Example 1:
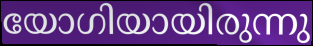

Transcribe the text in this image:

യോഗിയായിരുന്നു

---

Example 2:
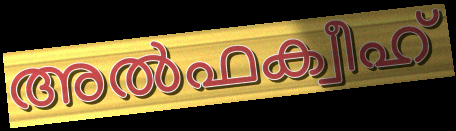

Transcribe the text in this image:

അൽഫക്വീഹ്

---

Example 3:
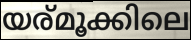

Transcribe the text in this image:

യര്മൂക്കിലെ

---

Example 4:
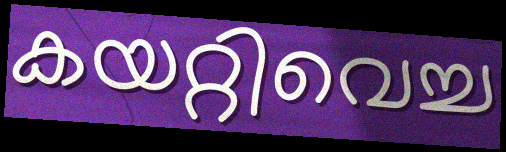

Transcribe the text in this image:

കയറ്റിവെച്ച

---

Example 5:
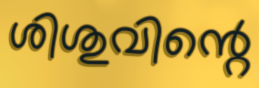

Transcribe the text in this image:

ശിശുവിന്റെ